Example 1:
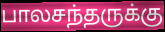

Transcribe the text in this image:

பாலசந்தருக்கு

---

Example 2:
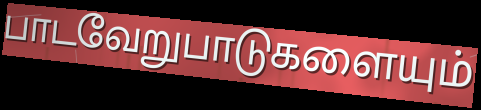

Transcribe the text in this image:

பாடவேறுபாடுகளையும்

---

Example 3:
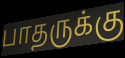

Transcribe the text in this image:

பாதருக்கு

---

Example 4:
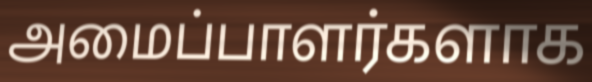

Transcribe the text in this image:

அமைப்பாளர்களாக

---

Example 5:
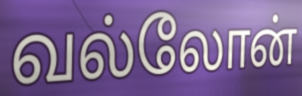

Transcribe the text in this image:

வல்லோன்